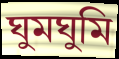
ঘুমঘুমি